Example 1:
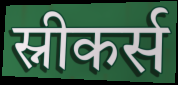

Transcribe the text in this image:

स्नीकर्स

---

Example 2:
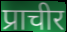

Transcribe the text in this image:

प्राचीर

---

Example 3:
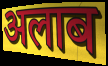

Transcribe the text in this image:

अलाब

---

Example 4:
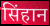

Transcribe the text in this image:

सिंहान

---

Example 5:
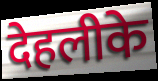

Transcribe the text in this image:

देहलीके